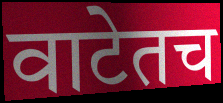
वाटेतच